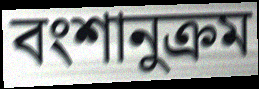
বংশানুক্রম